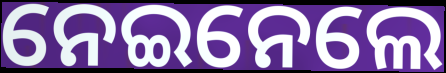
ନେଇନେଲେ